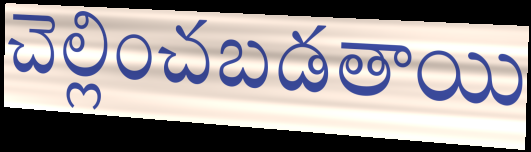
చెల్లించబడతాయి